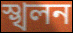
স্খলন